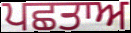
ਪਛਤਾਅ